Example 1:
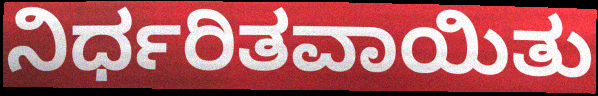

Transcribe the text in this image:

ನಿರ್ಧರಿತವಾಯಿತು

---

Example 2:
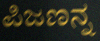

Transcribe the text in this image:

ಪಿಜಣನ್ನ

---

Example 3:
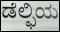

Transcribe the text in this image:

ಡೆಲ್ಫಿಯ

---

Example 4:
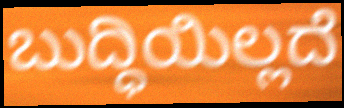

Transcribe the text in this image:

ಬುದ್ಧಿಯಿಲ್ಲದೆ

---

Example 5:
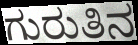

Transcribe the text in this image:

ಗುರುತಿನ